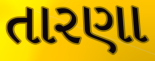
તારણા